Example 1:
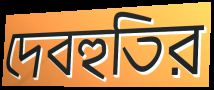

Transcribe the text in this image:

দেবহুতির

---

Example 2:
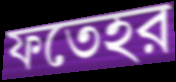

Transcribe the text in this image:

ফতেহর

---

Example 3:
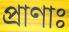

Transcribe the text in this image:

প্রাণাঃ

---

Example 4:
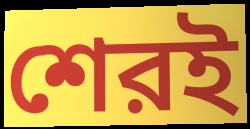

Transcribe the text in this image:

শেরই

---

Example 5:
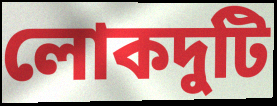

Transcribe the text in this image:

লোকদুটি